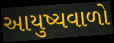
આયુષ્યવાળો